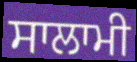
ਸਾਲਾਮੀ